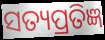
ସତ୍ୟପ୍ରତିଜ୍ଞ